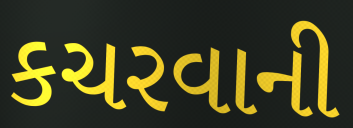
કચરવાની